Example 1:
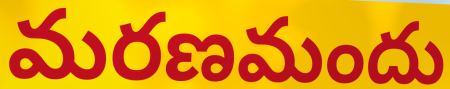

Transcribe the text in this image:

మరణమందు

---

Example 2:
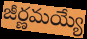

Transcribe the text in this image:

జీర్ణమయ్యే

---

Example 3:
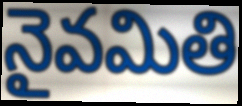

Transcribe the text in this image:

నైవమితి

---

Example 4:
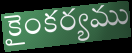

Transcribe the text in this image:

కైంకర్యము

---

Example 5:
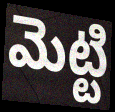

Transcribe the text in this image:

మెట్టి